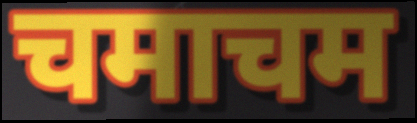
चमाचम